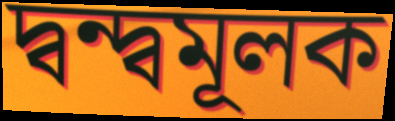
দ্বন্দ্বমূলক